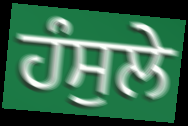
ਹੰਸੁਲੇ